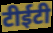
टीईटी